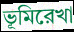
ভূমিরেখা